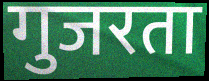
गुजरता